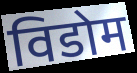
विडोम